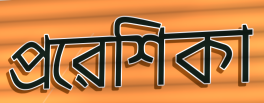
প্ৰৱেশিকা